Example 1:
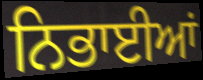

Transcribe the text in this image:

ਨਿਭਾਈਆਂ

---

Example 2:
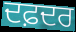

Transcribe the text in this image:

ਦਫ਼ਦਰ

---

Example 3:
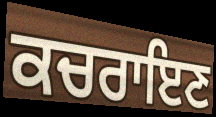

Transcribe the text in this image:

ਕਚਰਾਇਣ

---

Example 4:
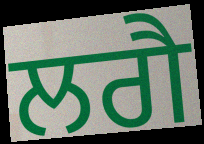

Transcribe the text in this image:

ਲਗੈ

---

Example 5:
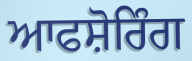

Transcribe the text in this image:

ਆਫਸ਼ੋਰਿੰਗ